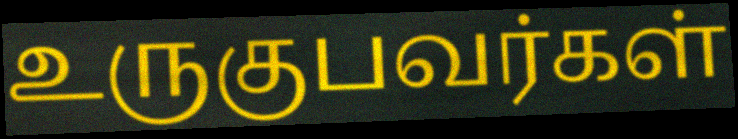
உருகுபவர்கள்